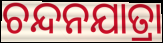
ଚନ୍ଦନଯାତ୍ରା